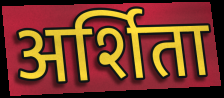
अर्शिता